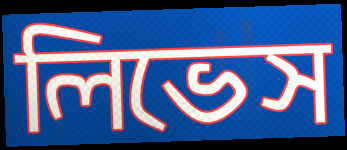
লিভেস